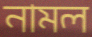
নামল